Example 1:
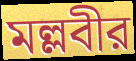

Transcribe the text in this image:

মল্লবীর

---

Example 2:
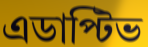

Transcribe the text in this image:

এডাপ্টিভ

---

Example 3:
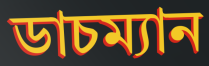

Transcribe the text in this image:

ডাচম্যান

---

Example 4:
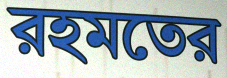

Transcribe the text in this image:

রহমতের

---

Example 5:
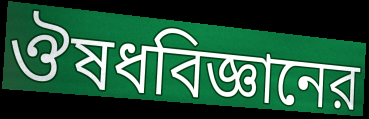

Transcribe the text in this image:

ঔষধবিজ্ঞানের